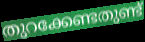
തുറക്കേണ്ടതുണ്ട്